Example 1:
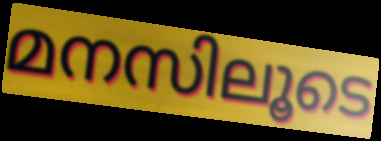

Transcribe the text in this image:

മനസിലൂടെ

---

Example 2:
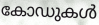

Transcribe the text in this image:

കോഡുകൾ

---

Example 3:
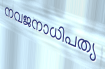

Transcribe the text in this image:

നവജനാധിപത്യ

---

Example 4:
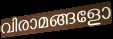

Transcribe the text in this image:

വിരാമങ്ങളോ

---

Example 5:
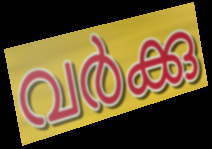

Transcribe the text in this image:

വർക്കു